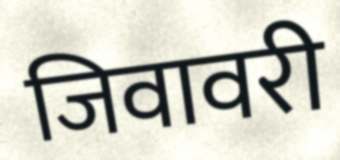
जिवावरी